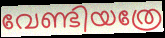
വേണ്ടിയത്രേ